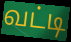
வட்டி